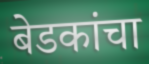
बेडकांचा